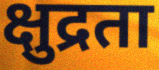
क्षुद्रता